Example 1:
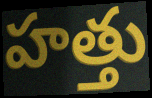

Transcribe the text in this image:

హత్తు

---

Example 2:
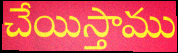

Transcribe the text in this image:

చేయిస్తాము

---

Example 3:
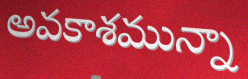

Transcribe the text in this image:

అవకాశమున్నా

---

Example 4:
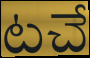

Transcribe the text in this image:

టచే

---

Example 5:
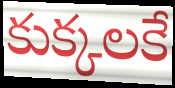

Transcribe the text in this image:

కుక్కలకే